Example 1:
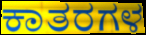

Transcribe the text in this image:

ಕಾತರಗಳ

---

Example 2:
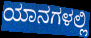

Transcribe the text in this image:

ಯಾನಗಳಲ್ಲಿ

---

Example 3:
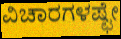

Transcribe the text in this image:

ವಿಚಾರಗಳಷ್ಟೇ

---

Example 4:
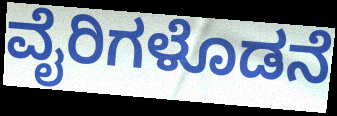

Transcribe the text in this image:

ವೈರಿಗಳೊಡನೆ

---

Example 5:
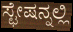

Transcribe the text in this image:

ಸ್ಟೇಷನ್ನಲ್ಲಿ